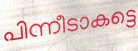
പിന്നീടാകട്ടെ